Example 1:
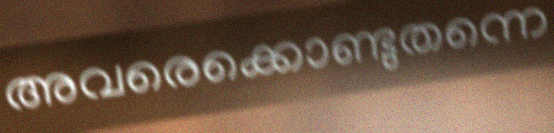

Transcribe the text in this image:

അവരെക്കൊണ്ടുതന്നെ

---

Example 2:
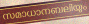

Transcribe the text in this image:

സമാധാനബലിയും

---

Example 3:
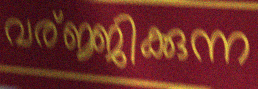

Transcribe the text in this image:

വര്ജ്ജിക്കുന്ന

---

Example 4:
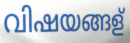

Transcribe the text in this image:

വിഷയങ്ങള്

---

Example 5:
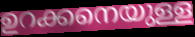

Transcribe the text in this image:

ഉറക്കനെയുള്ള